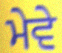
ਮੇਵੇ